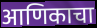
आणिकाचा